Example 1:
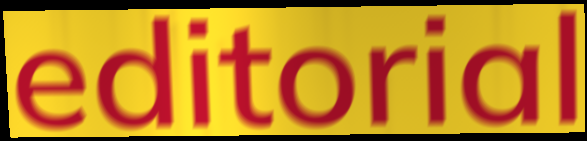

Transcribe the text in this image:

editorial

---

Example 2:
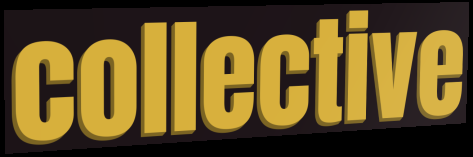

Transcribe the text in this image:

collective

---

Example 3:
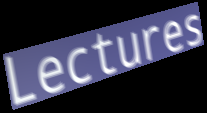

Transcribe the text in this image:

Lectures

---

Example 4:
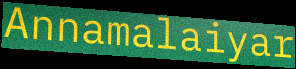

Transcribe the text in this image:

Annamalaiyar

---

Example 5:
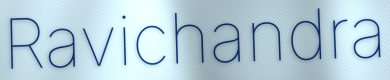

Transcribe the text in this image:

Ravichandra